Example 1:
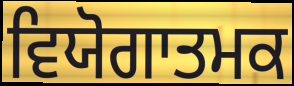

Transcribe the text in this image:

ਵਿਯੋਗਾਤਮਕ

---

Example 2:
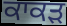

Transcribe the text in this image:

ਕਾਕੜ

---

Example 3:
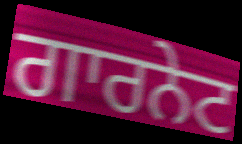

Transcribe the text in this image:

ਗਾਰਨੇਟ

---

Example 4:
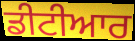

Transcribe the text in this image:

ਡੀਟੀਆਰ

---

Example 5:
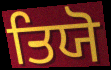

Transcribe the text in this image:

ਤਿਯੋ